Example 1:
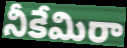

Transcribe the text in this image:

నీకేమిరా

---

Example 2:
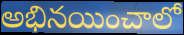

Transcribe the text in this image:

అభినయించాలో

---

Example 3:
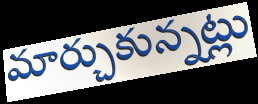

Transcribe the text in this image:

మార్చుకున్నట్లు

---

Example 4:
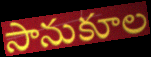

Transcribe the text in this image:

సానుకూల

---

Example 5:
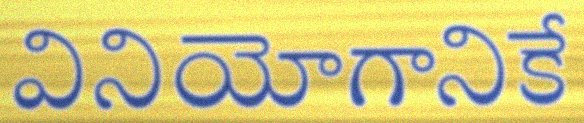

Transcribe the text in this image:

వినియోగానికే